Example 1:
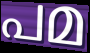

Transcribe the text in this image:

പമ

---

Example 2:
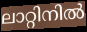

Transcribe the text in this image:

ലാറ്റിനിൽ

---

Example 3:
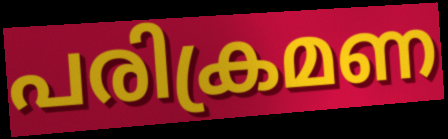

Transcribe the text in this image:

പരിക്രമണ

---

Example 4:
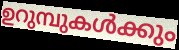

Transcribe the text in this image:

ഉറുമ്പുകൾക്കും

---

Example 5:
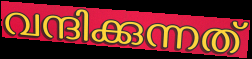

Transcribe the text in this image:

വന്ദിക്കുന്നത്